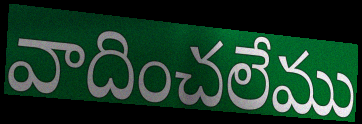
వాదించలేము